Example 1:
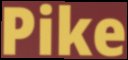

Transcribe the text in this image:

Pike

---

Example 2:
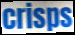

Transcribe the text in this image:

crisps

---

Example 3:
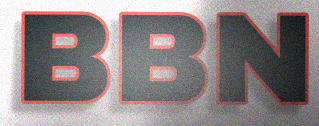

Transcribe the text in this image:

BBN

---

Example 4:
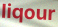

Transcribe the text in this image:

liqour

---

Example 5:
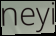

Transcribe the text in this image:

neyi